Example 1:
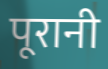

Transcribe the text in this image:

पूरानी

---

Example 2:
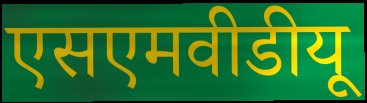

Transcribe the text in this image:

एसएमवीडीयू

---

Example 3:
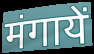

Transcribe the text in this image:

मंगायें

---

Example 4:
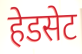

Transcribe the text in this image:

हेडसेट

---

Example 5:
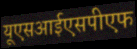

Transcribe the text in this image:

यूएसआईएसपीएफ